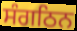
ਸੰਗਠਿਨ